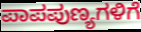
ಪಾಪಪುಣ್ಯಗಳಿಗೆ